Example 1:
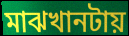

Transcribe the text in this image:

মাঝখানটায়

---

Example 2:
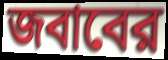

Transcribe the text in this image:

জবাবের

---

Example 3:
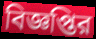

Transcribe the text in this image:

বিজ্ঞপ্তির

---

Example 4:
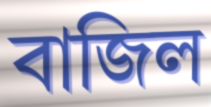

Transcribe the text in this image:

বাজিল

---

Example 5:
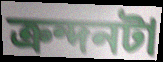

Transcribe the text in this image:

ক্রন্দনটা